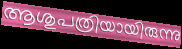
ആശുപത്രിയായിരുന്നു